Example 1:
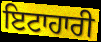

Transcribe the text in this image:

ਇਟਾਹਾਰੀ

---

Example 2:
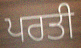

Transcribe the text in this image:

ਪਰਤੀ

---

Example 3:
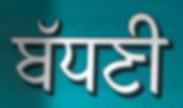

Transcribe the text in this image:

ਬੱਧਣੀ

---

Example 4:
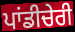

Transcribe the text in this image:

ਪਾਂਡੀਚੇਰੀ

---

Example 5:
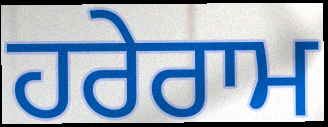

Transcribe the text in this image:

ਹਰੇਰਾਮ